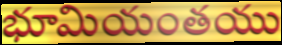
భూమియంతయు